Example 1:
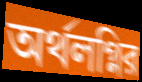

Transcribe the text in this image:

অর্থলগ্নির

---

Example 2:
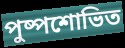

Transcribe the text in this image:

পুষ্পশোভিত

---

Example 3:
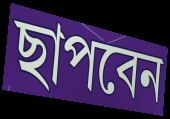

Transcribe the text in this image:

ছাপবেন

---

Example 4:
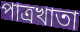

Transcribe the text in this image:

পাত্রখাতা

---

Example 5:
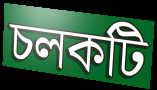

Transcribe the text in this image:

চলকটি